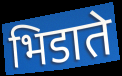
भिडाते